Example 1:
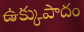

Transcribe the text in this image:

ఉక్కుపాదం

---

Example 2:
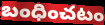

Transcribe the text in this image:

బంధించటం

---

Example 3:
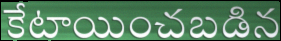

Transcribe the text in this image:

కేటాయించబడిన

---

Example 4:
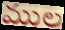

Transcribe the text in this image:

ముల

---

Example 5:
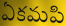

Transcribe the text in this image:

ఏకమపి